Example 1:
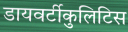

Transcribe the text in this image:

डायवर्टीकुलिटिस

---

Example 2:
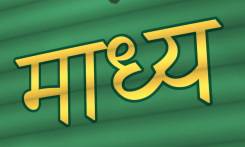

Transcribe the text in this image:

माध्य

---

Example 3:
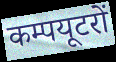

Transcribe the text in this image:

कम्पयूटरों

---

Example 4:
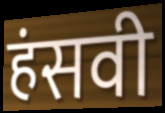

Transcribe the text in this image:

हंसवी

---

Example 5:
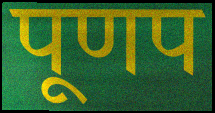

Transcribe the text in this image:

पूणप